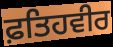
ਫ਼ਤਿਹਵੀਰ